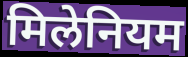
मिलेनियम